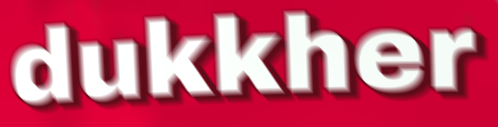
dukkher